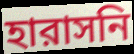
হারাসনি